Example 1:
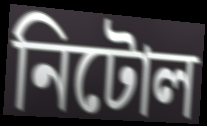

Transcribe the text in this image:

নিটোল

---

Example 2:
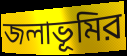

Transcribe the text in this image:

জলাভূমির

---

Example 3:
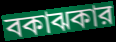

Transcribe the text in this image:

বকাঝকার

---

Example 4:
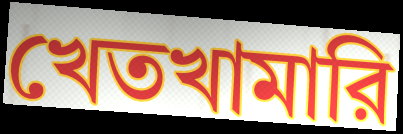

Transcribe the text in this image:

খেতখামারি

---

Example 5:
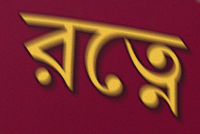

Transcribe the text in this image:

রত্নে